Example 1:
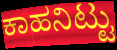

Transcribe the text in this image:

ಕಾಹನಿಟ್ಟು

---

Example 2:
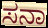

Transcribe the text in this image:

ಸನಾ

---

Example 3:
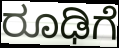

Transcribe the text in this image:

ರೂಢಿಗೆ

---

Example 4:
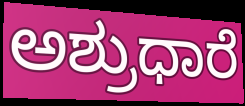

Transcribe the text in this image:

ಅಶ್ರುಧಾರೆ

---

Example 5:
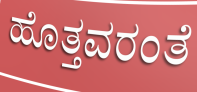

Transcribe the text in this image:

ಹೊತ್ತವರಂತೆ